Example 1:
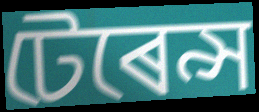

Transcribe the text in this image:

টেৰেন্স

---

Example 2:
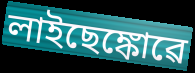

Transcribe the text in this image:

লাইছেঙ্কোৱে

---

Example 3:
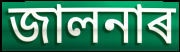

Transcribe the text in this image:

জালনাৰ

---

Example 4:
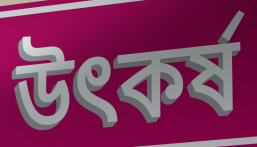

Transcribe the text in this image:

উৎকৰ্ষ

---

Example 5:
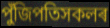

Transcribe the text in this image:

পুঁজিপতিসকলৰ